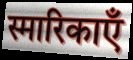
स्मारिकाएँ